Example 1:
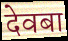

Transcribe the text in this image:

देवबा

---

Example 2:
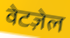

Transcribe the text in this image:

वेटज़ेल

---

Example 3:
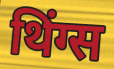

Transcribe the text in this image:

थिंग्स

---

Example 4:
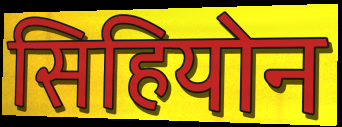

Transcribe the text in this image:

सिहियोन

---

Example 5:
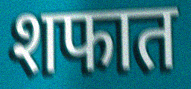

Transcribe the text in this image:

शफात